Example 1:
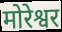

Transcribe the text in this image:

मोरेश्वर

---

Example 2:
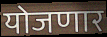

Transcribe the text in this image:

योजणार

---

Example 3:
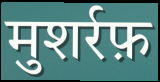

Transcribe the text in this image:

मुशर्रफ़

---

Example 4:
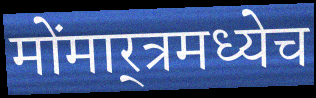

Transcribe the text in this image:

मोंमार्त्रमध्येच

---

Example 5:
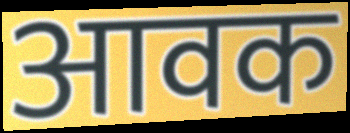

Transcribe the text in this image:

आवक